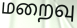
மறைவு